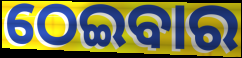
ଠେଇବାର